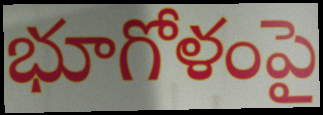
భూగోళంపై